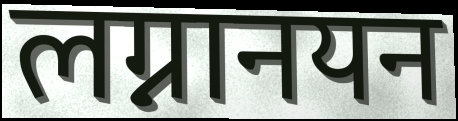
लग्नानयन